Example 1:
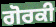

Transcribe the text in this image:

ਗੋਰਕੀ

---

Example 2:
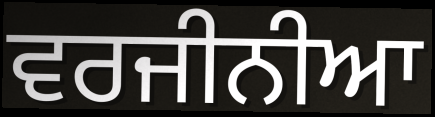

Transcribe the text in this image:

ਵਰਜੀਨੀਆ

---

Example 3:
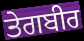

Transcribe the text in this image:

ਤੇਗਬੀਰ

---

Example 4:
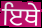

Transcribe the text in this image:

ਇਥੇ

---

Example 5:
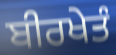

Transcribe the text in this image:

ਬੀਰਖੇਤੰ